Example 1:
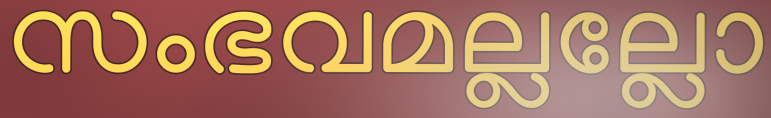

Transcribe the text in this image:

സംഭവമല്ലല്ലോ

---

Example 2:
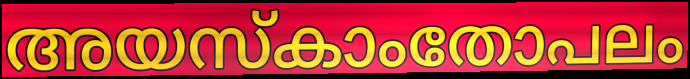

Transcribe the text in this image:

അയസ്കാംതോപലം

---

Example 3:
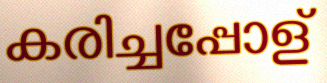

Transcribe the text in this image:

കരിച്ചപ്പോള്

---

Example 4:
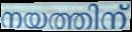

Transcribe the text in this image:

നയത്തിന്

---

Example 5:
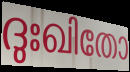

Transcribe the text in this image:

ദുഃഖിതോ